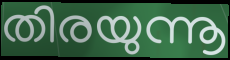
തിരയുന്നൂ